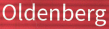
Oldenberg